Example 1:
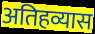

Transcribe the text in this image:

अतिहव्यास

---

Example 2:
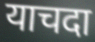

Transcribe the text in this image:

याचदा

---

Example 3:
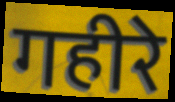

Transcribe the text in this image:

गहीरे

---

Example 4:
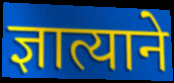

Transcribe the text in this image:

ज्ञात्याने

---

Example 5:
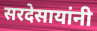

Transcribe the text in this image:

सरदेसायांनी